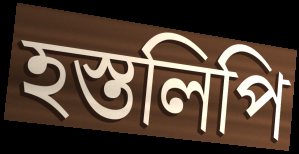
হস্তলিপি